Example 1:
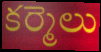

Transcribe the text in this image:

కర్మెలు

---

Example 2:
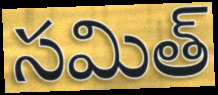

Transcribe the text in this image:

సమిత్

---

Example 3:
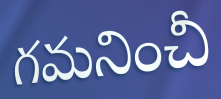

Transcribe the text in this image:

గమనించీ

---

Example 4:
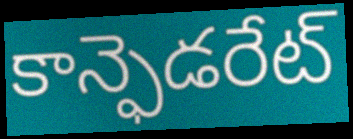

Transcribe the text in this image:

కాన్ఫెడరేట్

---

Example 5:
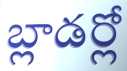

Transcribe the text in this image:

బ్లాడర్లో